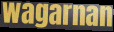
wagarnan